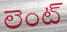
లెంట్